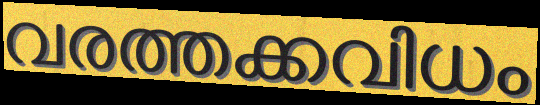
വരത്തക്കവിധം